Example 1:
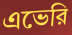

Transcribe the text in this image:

এভেরি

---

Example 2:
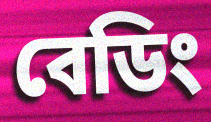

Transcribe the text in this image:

বেডিং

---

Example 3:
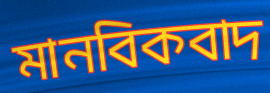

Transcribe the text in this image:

মানবিকবাদ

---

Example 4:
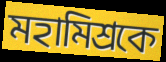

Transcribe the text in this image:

মহামিশ্রকে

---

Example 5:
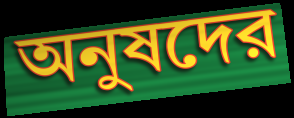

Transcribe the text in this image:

অনুষদের